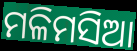
ମଳିମସିଆ